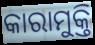
କାରାମୁକ୍ତି